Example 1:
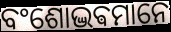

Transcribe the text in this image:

ବଂଶୋଦ୍ଭଵମାନେ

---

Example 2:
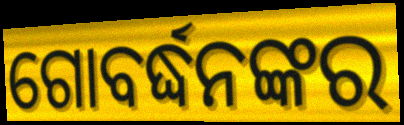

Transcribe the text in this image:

ଗୋବର୍ଦ୍ଧନଙ୍କର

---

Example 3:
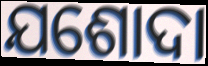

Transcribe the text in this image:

ଯଶୋଦା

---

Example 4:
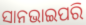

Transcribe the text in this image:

ସାନଭାଇପରି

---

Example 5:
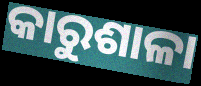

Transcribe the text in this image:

କାରୁଶାଳା